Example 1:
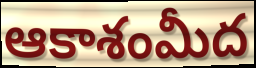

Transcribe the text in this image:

ఆకాశంమీద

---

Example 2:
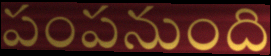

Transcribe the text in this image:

పంపనుంది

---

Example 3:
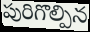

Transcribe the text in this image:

పురిగొల్పిన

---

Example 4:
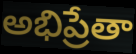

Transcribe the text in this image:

అభిప్రేతా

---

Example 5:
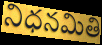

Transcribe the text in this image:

నిధనమితి